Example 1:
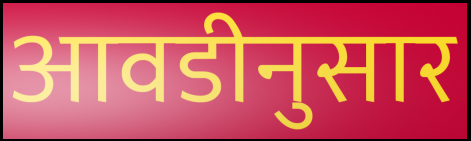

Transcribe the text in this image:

आवडीनुसार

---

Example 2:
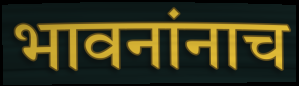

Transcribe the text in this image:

भावनांनाच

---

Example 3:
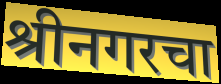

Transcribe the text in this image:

श्रीनगरचा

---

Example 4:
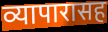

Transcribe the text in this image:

व्यापारासह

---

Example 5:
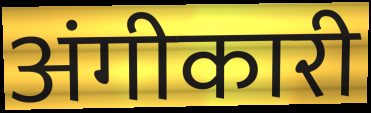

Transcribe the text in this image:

अंगीकारी